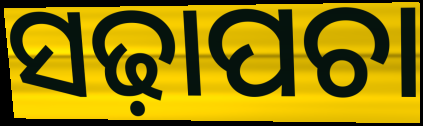
ସଢ଼ାପଚା